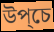
উপ্চে